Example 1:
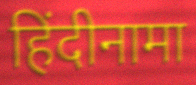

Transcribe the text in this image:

हिंदीनामा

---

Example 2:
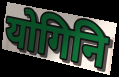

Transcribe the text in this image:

योगिनि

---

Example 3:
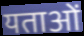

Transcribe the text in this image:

यताओं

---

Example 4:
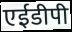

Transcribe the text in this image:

एईडीपी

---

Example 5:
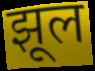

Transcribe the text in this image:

झूल